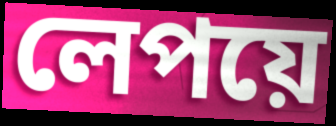
লেপয়ে